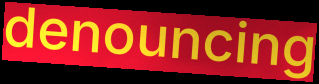
denouncing